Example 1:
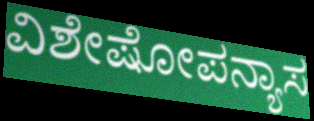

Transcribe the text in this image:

ವಿಶೇಷೋಪನ್ಯಾಸ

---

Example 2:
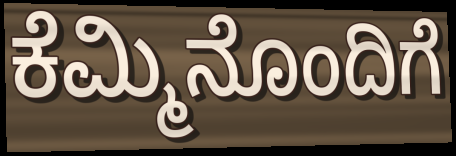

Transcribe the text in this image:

ಕೆಮ್ಮಿನೊಂದಿಗೆ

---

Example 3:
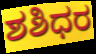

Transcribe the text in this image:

ಶಶಿಧರ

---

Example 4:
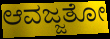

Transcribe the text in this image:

ಆವಜ್ಜತೋ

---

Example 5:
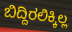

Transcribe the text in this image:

ಬಿದ್ದಿರಲಿಕ್ಕಿಲ್ಲ